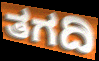
ತಗದಿ